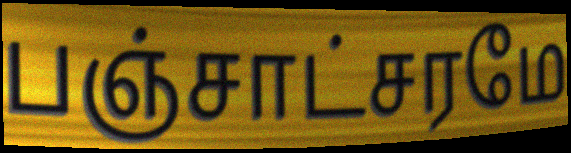
பஞ்சாட்சரமே